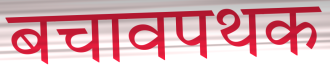
बचावपथक